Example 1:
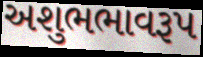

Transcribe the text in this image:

અશુભભાવરૂપ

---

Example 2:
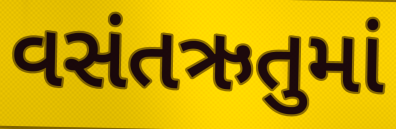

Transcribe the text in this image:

વસંતઋતુમાં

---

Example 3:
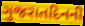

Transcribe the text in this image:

ગુજરાતદિનની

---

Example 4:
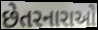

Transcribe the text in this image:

છેતરનારાઓ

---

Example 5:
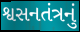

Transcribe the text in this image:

શ્વસનતંત્રનું